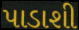
પાડાશી